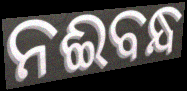
ନଈବନ୍ଧ